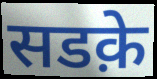
सडक़े